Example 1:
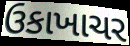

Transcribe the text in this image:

ઉકાખાચર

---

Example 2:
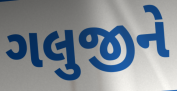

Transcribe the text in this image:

ગલુજીને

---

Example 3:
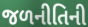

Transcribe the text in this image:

જળનીતિની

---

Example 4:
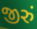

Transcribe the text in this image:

જીરું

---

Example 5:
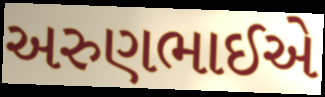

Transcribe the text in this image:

અરુણભાઈએ